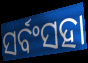
ସର୍ବଂସହା